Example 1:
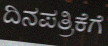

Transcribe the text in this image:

ದಿನಪತ್ರಿಕೆಗೆ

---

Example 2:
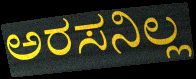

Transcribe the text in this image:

ಅರಸನಿಲ್ಲ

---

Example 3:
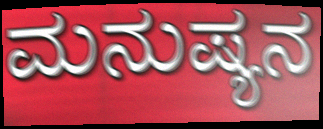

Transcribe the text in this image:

ಮನುಷ್ಯನ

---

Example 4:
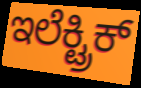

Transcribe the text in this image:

ಇಲೆಕ್ಟ್ರಿಕ್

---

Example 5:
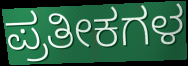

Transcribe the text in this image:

ಪ್ರತೀಕಗಳ